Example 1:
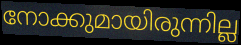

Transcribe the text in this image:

നോക്കുമായിരുന്നില്ല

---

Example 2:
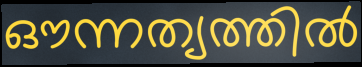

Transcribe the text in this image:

ഔന്നത്യത്തിൽ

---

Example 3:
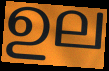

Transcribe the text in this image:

ഉല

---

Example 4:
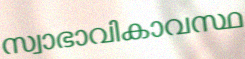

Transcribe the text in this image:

സ്വാഭാവികാവസ്ഥ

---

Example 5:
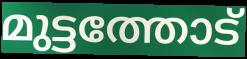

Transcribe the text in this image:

മുട്ടത്തോട്